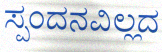
ಸ್ಪಂದನವಿಲ್ಲದ